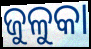
ଜୁଳୁକା